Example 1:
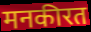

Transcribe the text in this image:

मनकीरत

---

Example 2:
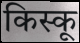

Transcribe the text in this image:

किस्कू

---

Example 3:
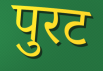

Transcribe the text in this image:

पुरट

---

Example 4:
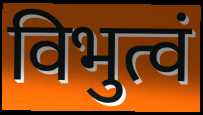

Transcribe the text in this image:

विभुत्वं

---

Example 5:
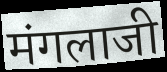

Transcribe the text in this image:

मंगलाजी